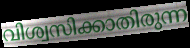
വിശ്വസിക്കാതിരുന്ന